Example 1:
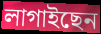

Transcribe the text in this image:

লাগাইছেন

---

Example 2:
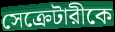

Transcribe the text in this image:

সেক্রেটারীকে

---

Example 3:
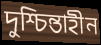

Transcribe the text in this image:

দুশ্চিন্তাহীন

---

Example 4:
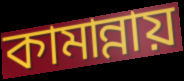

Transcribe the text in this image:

কামান্নায়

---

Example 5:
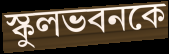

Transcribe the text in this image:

স্কুলভবনকে